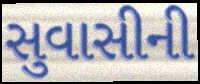
સુવાસીની